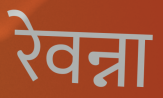
रेवन्ना